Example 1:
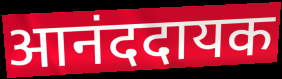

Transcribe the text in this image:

आनंददायक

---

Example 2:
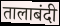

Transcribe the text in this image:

तालाबंदी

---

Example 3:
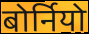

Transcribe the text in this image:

बोर्नियो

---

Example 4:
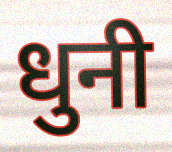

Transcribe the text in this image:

धुनी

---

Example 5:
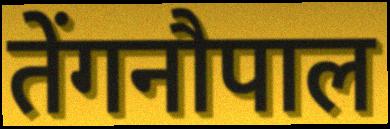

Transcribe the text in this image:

तेंगनौपाल